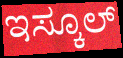
ಇಸ್ಕೂಲ್